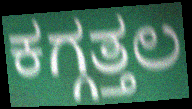
ಕಗ್ಗತ್ತಲ